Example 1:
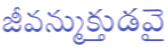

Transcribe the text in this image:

జీవన్ముక్తుడవై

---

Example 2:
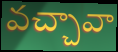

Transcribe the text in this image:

వచ్చావా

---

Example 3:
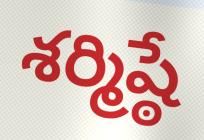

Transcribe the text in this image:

శర్మిష్ఠే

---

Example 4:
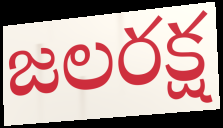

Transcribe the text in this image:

జలరక్ష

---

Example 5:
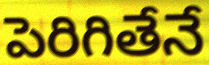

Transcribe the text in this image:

పెరిగితేనే